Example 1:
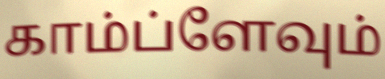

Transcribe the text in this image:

காம்ப்ளேவும்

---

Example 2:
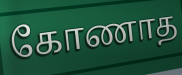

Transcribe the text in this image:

கோணாத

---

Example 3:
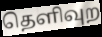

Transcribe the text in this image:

தெளிவுற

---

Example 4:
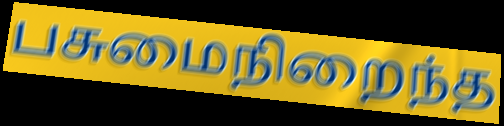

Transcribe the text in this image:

பசுமைநிறைந்த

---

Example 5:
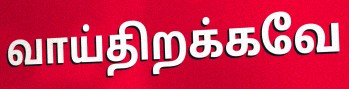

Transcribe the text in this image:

வாய்திறக்கவே